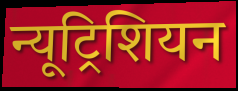
न्यूट्रिशियन